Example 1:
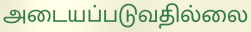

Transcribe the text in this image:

அடையப்படுவதில்லை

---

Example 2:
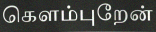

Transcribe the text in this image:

கெளம்புறேன்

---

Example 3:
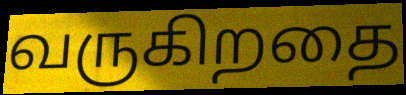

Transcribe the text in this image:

வருகிறதை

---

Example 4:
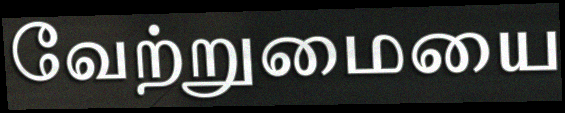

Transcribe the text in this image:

வேற்றுமையை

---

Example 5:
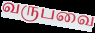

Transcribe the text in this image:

வருபவை